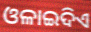
ଓଳାଇଦିଏ